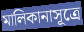
মালিকানাসূত্রে